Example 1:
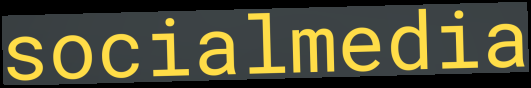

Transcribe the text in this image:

socialmedia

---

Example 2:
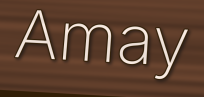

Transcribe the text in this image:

Amay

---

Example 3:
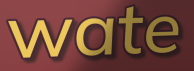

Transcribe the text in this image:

wate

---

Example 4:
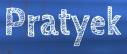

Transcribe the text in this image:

Pratyek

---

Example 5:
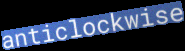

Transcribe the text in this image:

anticlockwise